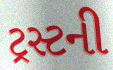
ટ્રસ્ટની